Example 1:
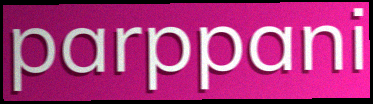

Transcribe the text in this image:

parppani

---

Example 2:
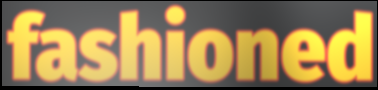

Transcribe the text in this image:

fashioned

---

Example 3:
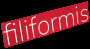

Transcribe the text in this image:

filiformis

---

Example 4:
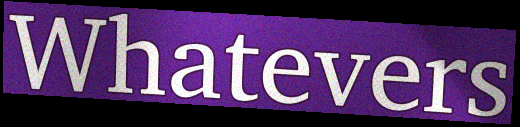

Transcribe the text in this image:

Whatevers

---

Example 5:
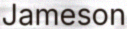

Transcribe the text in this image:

Jameson